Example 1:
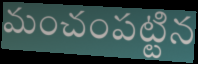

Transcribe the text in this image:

మంచంపట్టిన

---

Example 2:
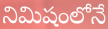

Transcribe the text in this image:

నిమిషంలోనే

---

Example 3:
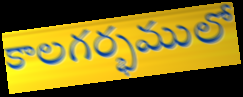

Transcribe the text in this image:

కాలగర్భములో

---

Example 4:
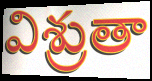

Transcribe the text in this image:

విశ్రుతా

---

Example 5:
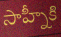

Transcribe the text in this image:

సాహ్నీకి